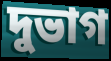
দুভাগ